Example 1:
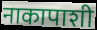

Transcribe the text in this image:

नाकापाशी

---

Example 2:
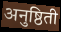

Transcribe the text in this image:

अनुष्ठिती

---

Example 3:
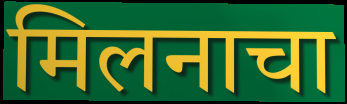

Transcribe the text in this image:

मिलनाचा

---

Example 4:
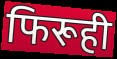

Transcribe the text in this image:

फिरूही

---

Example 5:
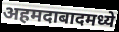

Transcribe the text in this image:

अहमदाबादमध्ये